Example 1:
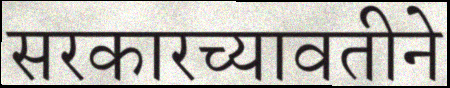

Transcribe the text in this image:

सरकारच्यावतीने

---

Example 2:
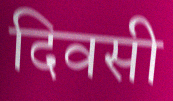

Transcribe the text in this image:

दिवसी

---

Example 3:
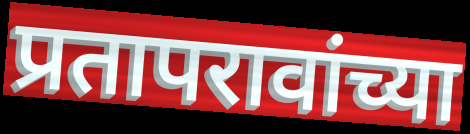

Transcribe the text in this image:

प्रतापरावांच्या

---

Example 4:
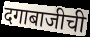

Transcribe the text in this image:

दगाबाजीची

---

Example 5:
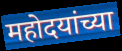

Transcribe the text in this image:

महोदयांच्या